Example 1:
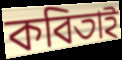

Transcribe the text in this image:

কবিতাই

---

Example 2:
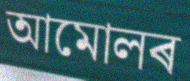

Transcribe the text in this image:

আমোলৰ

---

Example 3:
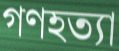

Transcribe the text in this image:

গণহত্যা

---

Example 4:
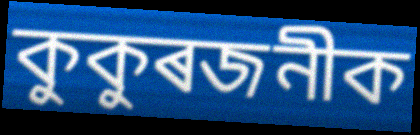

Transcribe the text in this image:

কুকুৰজনীক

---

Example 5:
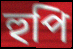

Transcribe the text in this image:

হুপি